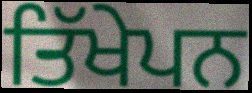
ਤਿੱਖੇਪਨ